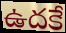
ఉదకే